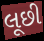
લૂછી